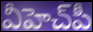
వీహెచ్‌పీ